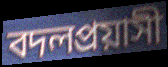
বদলপ্রয়াসী